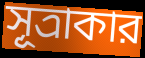
সূত্রাকার